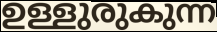
ഉള്ളുരുകുന്ന